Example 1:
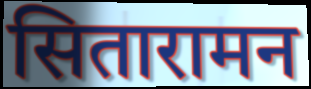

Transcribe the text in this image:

सितारामन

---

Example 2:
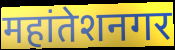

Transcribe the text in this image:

महांतेशनगर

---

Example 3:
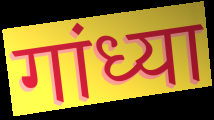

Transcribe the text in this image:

गांध्या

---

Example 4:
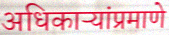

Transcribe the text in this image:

अधिकाऱ्यांप्रमाणे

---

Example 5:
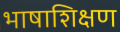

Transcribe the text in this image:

भाषाशिक्षण